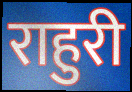
राहुरी